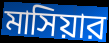
মাসিয়ার